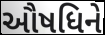
ઔષધિને